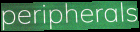
peripherals